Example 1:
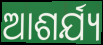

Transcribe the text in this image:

ଆଶର୍ଯ୍ୟ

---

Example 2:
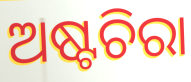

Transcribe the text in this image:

ଅଷ୍ଟଚିରା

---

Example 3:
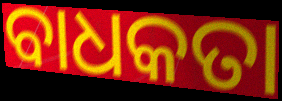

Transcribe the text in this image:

ବାଧକତା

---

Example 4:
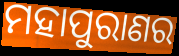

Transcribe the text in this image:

ମହାପୁରାଣର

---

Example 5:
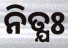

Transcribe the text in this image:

ନିତ୍ଯଃ